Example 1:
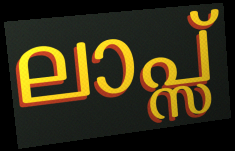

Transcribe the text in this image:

ലാപ്സ്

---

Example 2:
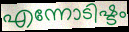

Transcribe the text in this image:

എന്നോടിഷ്ടം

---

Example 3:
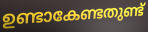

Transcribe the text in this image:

ഉണ്ടാകേണ്ടതുണ്ട്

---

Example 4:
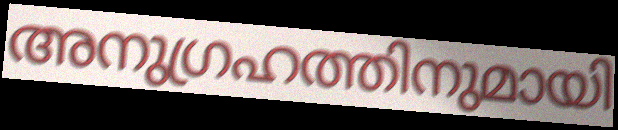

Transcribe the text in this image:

അനുഗ്രഹത്തിനുമായി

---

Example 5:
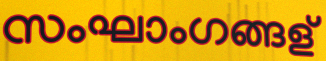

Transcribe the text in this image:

സംഘാംഗങ്ങള്